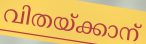
വിതയ്ക്കാന്